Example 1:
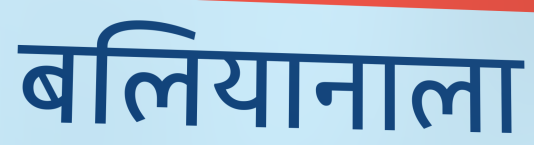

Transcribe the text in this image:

बलियानाला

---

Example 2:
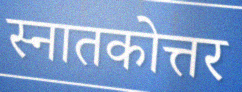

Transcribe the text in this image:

स्नातकोत्तर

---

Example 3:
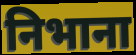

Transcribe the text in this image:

निभाना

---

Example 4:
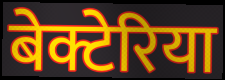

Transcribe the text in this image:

बेक्टेरिया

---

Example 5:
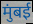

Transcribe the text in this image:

मुंबई